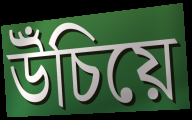
উঁচিয়ে